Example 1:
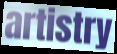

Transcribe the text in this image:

artistry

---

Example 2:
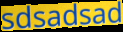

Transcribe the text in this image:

sdsadsad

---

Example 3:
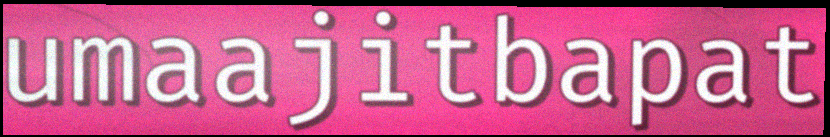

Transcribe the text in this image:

umaajitbapat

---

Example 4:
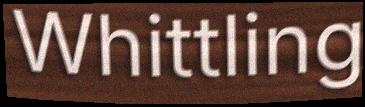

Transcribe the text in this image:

Whittling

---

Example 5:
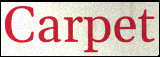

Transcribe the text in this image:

Carpet